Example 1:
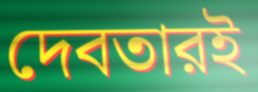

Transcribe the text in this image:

দেবতারই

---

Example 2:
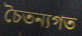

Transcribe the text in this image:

চৈতন্যগত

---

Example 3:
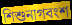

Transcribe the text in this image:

শিশুনাগবংশ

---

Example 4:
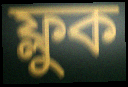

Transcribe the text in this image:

ফ্লুক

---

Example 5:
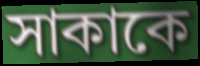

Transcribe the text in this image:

সাকাকে